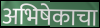
अभिषेकाचा